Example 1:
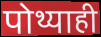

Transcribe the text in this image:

पोथ्याही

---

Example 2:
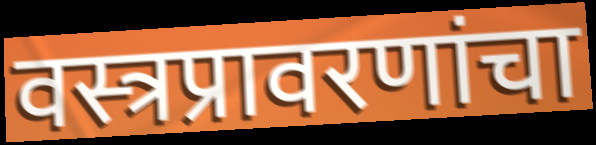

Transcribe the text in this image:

वस्त्रप्रावरणांचा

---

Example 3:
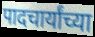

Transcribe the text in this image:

पादचार्यांच्या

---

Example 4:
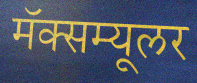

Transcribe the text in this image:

मॅक्सम्यूलर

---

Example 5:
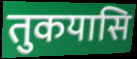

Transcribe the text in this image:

तुकयासि